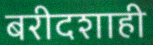
बरीदशाही